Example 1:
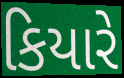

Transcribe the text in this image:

કિયારે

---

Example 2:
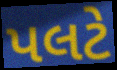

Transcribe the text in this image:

પલટે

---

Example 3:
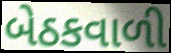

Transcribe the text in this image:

બેઠકવાળી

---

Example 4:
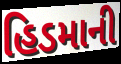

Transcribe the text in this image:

હિડમાની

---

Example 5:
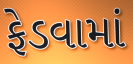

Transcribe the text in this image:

ફેડવામાં